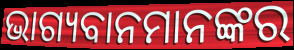
ଭାଗ୍ୟବାନମାନଙ୍କର